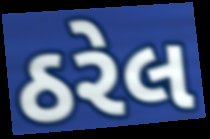
ઠરેલ